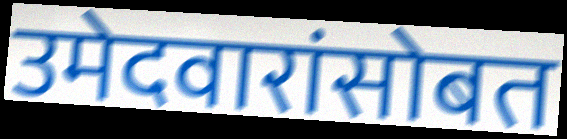
उमेदवारांसोबत